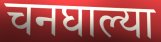
चनघाल्या